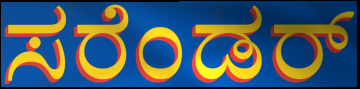
ಸರೆಂಡರ್